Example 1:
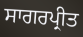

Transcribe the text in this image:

ਸਾਗਰਪ੍ਰੀਤ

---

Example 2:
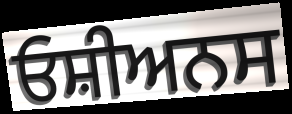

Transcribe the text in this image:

ਓਸ਼ੀਅਨਸ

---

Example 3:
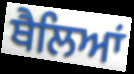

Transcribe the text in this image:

ਥੈਲਿਆਂ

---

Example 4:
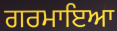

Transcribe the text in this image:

ਗਰਮਾਇਆ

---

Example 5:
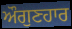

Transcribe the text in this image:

ਔਗੁਣਹਾਰ